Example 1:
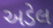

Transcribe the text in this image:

અડેલ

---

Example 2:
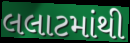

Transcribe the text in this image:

લલાટમાંથી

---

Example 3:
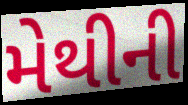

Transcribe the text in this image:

મેથીની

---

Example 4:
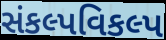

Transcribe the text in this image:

સંકલ્પવિકલ્પ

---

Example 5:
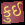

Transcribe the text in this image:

કુઈ